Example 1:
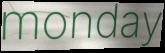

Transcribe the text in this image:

monday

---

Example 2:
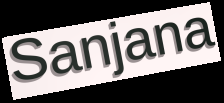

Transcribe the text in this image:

Sanjana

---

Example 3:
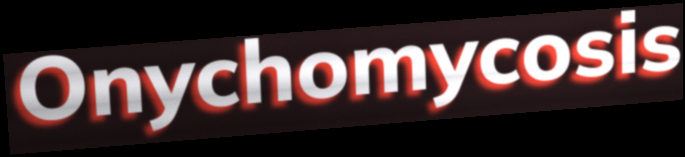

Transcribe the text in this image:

Onychomycosis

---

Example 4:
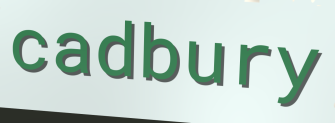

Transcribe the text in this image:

cadbury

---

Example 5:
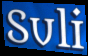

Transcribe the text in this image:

Suli